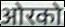
ओरको